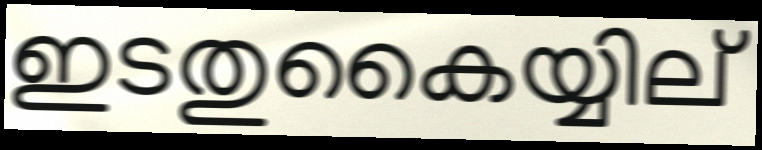
ഇടതുകൈയ്യില്